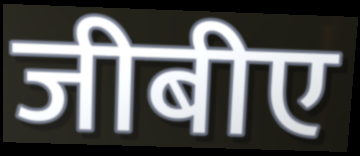
जीबीए